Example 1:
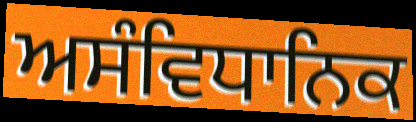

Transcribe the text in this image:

ਅਸੰਵਿਧਾਨਿਕ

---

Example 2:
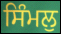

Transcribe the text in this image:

ਸਿੰਮਲੁ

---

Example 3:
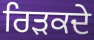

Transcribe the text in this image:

ਰਿੜਕਦੇ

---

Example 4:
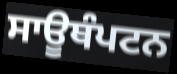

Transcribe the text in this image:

ਸਾਊਥੰਪਟਨ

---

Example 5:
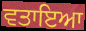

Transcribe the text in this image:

ਵਤਾਇਆ